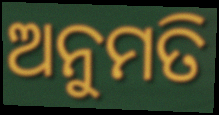
ଅନୁମତି